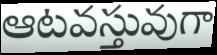
ఆటవస్తువుగా